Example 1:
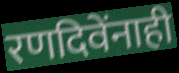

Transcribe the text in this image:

रणदिवेंनाही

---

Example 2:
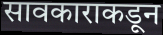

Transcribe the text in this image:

सावकाराकडून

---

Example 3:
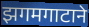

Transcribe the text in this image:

झगमगाटाने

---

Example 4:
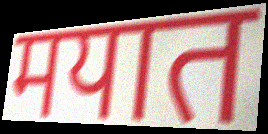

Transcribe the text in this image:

मयात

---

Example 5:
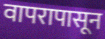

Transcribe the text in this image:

वापरापासून